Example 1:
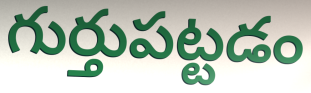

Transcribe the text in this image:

గుర్తుపట్టడం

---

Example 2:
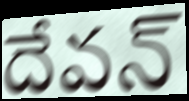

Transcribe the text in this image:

దేవన్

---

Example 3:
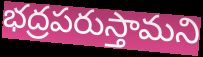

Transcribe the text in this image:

భద్రపరుస్తామని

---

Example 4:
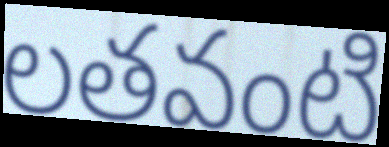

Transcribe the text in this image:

లతవంటి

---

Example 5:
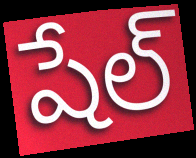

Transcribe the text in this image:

షేల్